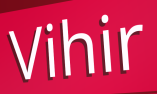
Vihir